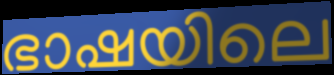
ഭാഷയിലെ